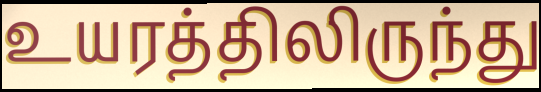
உயரத்திலிருந்து